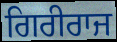
ਗਿਰੀਰਾਜ